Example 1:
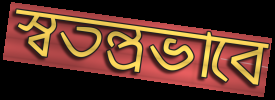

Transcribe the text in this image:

স্বতন্ত্রভাবে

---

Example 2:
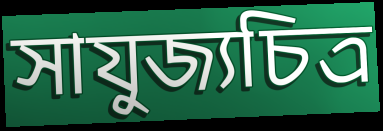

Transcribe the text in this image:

সাযুজ্যচিত্র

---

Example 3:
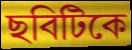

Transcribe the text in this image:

ছবিটিকে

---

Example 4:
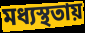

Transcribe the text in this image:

মধ্যস্থতায়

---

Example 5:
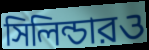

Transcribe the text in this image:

সিলিন্ডারও